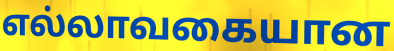
எல்லாவகையான